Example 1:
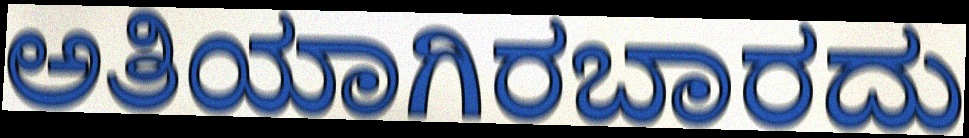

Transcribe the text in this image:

ಅತಿಯಾಗಿರಬಾರದು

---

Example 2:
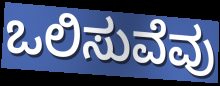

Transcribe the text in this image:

ಒಲಿಸುವೆವು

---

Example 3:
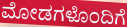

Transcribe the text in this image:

ಮೋಡಗಳೊಂದಿಗೆ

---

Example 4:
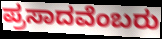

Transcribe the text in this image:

ಪ್ರಸಾದವೆಂಬರು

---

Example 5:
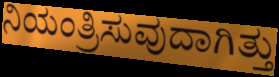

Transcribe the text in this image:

ನಿಯಂತ್ರಿಸುವುದಾಗಿತ್ತು